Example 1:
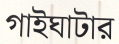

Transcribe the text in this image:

গাইঘাটার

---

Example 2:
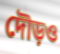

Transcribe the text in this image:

দৌড়ও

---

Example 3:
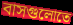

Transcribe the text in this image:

বাসগুলোতে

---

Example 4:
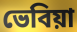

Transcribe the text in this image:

ভেবিয়া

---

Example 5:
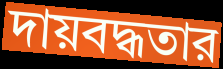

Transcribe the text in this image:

দায়বদ্ধতার